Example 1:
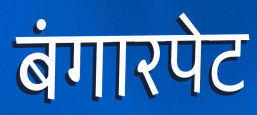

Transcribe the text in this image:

बंगारपेट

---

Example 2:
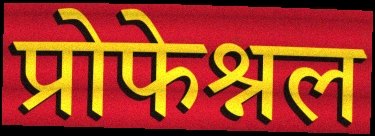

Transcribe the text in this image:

प्रोफेश्नल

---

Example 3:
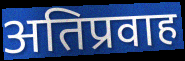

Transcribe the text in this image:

अतिप्रवाह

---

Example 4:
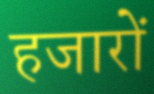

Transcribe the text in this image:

हजारों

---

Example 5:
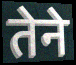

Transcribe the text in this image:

तेने